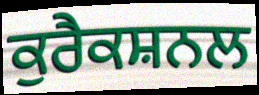
ਕੁਰੈਕਸ਼ਨਲ